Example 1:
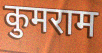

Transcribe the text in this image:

कुमराम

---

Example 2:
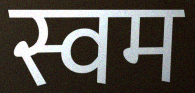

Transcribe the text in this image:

स्वम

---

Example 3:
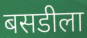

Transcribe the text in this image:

बसडीला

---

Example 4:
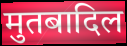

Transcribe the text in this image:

मुतबादिल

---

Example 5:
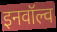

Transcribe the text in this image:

इनवॉल्व